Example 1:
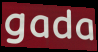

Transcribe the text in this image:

gada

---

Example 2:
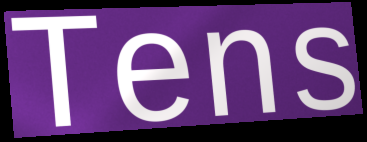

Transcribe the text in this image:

Tens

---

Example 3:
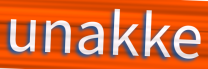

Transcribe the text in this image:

unakke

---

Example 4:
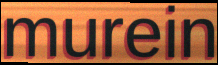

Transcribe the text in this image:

murein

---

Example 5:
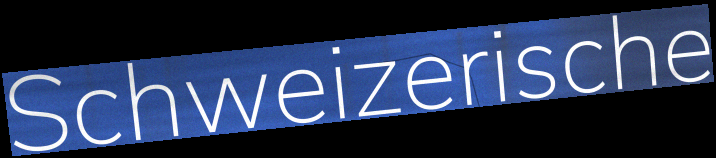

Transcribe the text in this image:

Schweizerische